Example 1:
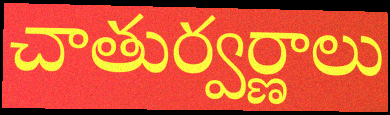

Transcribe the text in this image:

చాతుర్వర్ణాలు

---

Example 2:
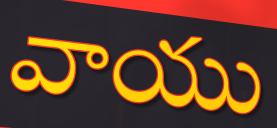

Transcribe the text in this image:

వాయు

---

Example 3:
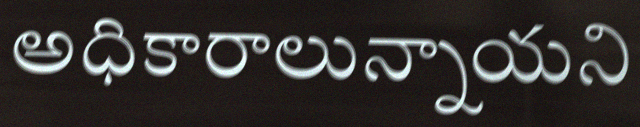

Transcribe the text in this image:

అధికారాలున్నాయని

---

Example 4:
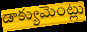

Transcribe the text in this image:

డాక్యుమెంట్లు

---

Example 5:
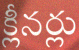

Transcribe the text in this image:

క్లీనర్లు